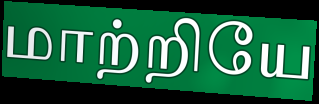
மாற்றியே